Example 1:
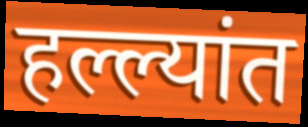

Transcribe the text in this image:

हल्ल्यांत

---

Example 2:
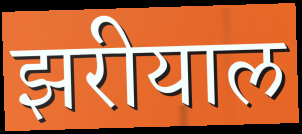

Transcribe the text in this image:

झरीयाल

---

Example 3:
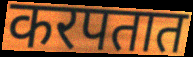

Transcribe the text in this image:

करपतात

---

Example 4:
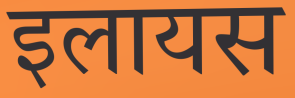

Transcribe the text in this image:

इलायस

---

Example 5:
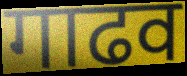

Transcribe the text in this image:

गाढव